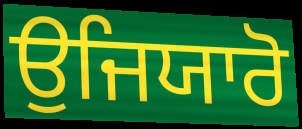
ਉਜਿਯਾਰੋ